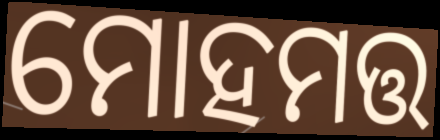
ମୋହମତ୍ତ